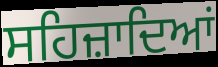
ਸਹਿਜ਼ਾਦਿਆਂ